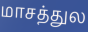
மாசத்துல